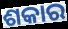
ଶକାର